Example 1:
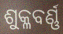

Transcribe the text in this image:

ଶୁକ୍ଳବର୍ଣ୍ଣ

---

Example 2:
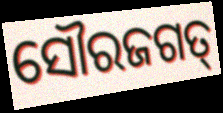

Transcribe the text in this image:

ସୌରଜଗତ୍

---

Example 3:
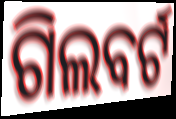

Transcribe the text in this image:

ଗିଲବର୍ଟ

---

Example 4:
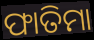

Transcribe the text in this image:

ଫାତିମା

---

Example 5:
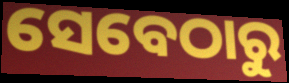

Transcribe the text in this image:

ସେବେଠାରୁ